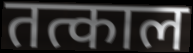
तत्काल